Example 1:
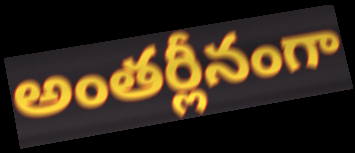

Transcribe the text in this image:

అంతర్లీనంగా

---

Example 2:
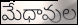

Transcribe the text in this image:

మేధావుల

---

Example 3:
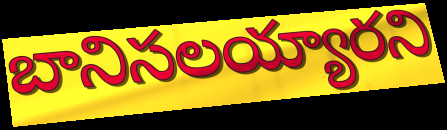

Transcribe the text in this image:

బానిసలయ్యారని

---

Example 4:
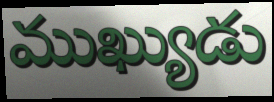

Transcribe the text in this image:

ముఖ్యుడు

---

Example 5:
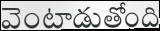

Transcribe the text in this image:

వెంటాడుతోంది